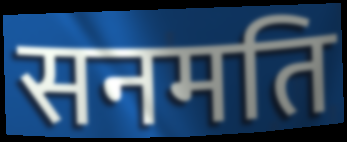
सनमति